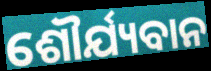
ଶୌର୍ଯ୍ୟବାନ